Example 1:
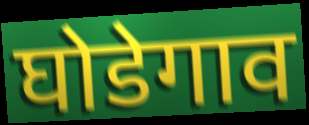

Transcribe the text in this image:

घोडेगाव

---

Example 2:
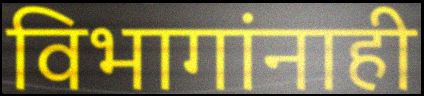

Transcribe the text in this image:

विभागांनाही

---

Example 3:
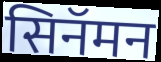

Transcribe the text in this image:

सिनॅमन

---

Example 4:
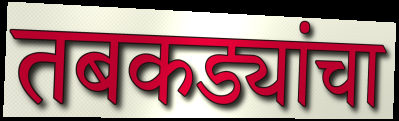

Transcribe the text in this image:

तबकड्यांचा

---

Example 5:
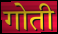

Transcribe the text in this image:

गोती